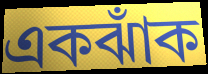
একঝাঁক